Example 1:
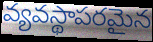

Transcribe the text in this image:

వ్యవస్థాపరమైన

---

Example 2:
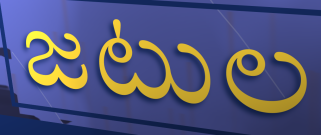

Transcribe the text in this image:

జటుల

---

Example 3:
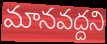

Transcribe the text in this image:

మానవద్దని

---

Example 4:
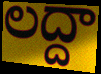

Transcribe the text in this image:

లద్దా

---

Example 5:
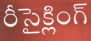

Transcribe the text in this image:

రీసైక్లింగ్